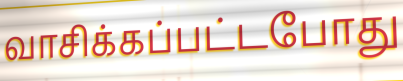
வாசிக்கப்பட்டபோது